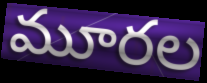
మూరల